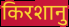
किरशानु